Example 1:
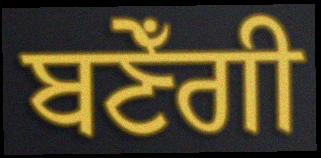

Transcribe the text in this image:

ਬਣੇਁਗੀ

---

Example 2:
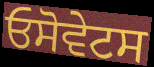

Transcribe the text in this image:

ਓਸੋਵੇਟਸ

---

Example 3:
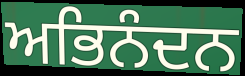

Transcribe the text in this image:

ਅਭਿਨੰਦਨ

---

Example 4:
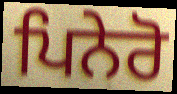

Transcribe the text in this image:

ਪਿਨੇਰੋ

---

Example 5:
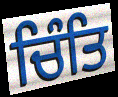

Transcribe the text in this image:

ਚਿੰਤਿ